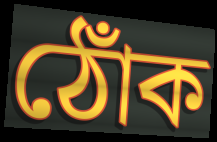
ঠোঁক